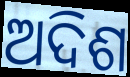
ଅଦିଶ